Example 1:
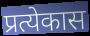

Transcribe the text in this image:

प्रत्येकास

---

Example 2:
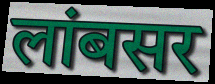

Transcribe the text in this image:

लांबसर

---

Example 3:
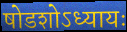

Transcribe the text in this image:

षोडशोऽध्यायः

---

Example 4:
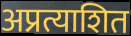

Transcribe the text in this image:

अप्रत्याशित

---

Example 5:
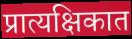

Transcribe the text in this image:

प्रात्यक्षिकात